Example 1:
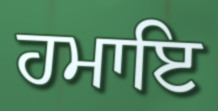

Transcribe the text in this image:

ਹਮਾਇ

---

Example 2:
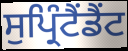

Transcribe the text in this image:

ਸੁਪ੍ਰਿੰਟੈਂਡੈਂਟ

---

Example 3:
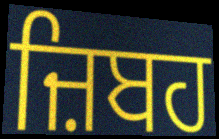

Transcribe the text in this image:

ਜ਼ਿਬਹ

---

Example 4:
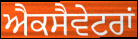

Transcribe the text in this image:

ਐਕਸੈਵੇਟਰਾਂ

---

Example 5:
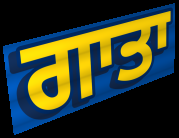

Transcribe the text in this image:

ਗਾਤਾ